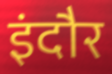
इंदौर